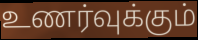
உணர்வுக்கும்